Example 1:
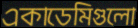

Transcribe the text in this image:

একাডেমিগুলো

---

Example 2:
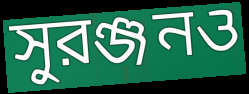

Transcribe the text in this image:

সুরঞ্জনও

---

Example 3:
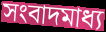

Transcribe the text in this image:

সংবাদমাধ্য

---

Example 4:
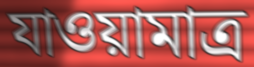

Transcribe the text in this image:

যাওয়ামাত্র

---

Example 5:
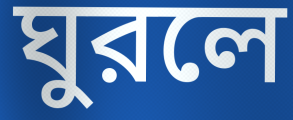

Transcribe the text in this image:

ঘুরলে